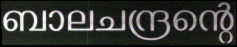
ബാലചന്ദ്രന്റെ